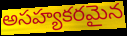
అసహ్యకరమైన